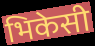
भिकेसी